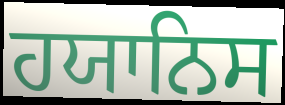
ਹਯਾਨਿਸ